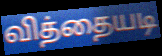
வித்தையடி